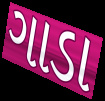
ગાડા